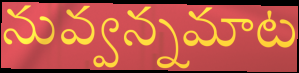
నువ్వన్నమాట